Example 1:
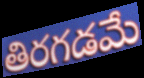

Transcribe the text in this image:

తిరగడమే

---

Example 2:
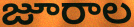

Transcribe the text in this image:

జూరాల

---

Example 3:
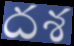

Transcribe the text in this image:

దశ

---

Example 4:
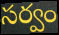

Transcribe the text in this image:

సర్వం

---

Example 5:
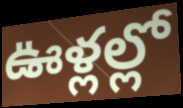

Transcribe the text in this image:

ఊళ్లల్లో